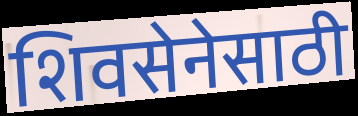
शिवसेनेसाठी